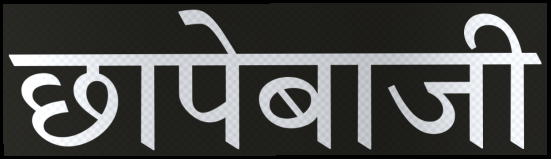
छापेबाजी